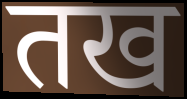
तख